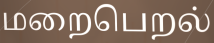
மறைபெறல்